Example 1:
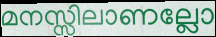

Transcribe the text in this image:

മനസ്സിലാണല്ലോ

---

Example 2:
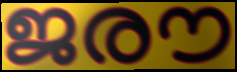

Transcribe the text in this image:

ജരൗ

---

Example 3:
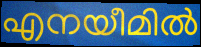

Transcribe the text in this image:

എനയീമിൽ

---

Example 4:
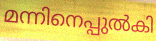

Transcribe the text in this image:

മന്നിനെപ്പുൽകി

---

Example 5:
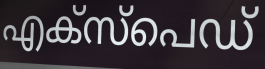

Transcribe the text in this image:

എക്സ്പെഡ്